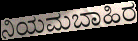
ನಿಯಮಬಾಹಿರ